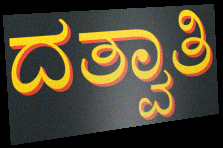
ದತ್ವಾತಿ